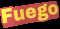
Fuego